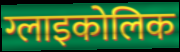
ग्लाइकोलिक